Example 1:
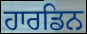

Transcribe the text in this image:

ਹਾਰਡਿਨ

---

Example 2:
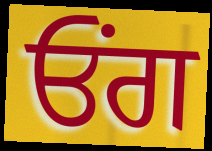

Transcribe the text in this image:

ਓਂਗ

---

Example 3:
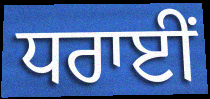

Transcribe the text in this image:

ਧਰਾਈਂ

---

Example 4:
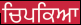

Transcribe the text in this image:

ਚਿਪਕਿਆ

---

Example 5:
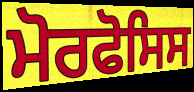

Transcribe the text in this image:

ਮੋਰਫੋਸਿਸ